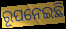
ରୂପନେଇଛି